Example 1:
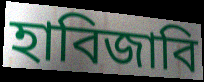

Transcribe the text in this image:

হাবিজাবি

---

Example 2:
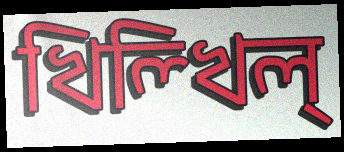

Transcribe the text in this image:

খিল্খিল্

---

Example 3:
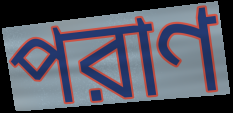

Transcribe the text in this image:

পরাণ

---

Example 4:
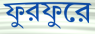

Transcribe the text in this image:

ফুরফুরে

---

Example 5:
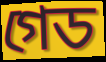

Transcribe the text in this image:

গেড